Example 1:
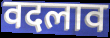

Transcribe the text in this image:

वदलाव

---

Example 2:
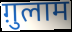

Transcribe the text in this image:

ग़ुलाम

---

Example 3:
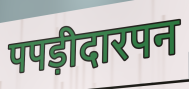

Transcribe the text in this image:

पपड़ीदारपन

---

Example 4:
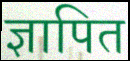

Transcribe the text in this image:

ज्ञापित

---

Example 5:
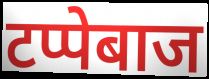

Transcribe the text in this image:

टप्पेबाज